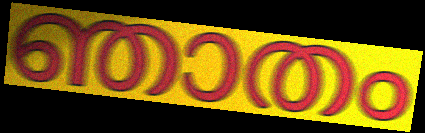
ഞാതം